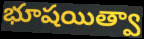
భూషయిత్వా